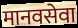
मानवसेवा